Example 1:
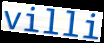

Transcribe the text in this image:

villi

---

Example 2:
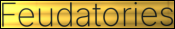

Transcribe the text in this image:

Feudatories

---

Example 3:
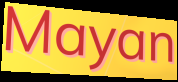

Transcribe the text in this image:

Mayan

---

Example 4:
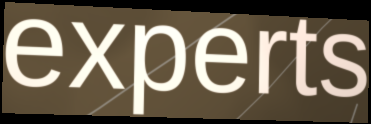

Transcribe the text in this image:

experts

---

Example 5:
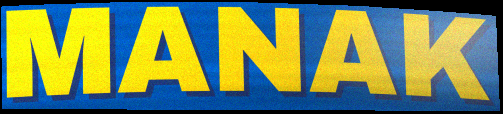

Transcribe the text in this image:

MANAK